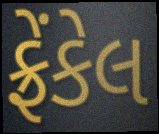
ફ્રેંકેલ